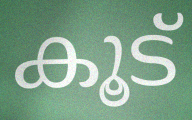
കൂട്